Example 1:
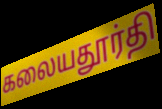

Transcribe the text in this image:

கலையதூர்தி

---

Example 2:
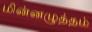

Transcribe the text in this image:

மின்னழுத்தம்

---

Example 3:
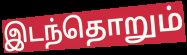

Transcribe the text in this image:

இடந்தொறும்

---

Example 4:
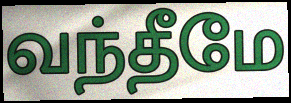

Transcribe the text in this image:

வந்தீமே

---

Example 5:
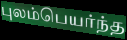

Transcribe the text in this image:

புலம்பெயர்ந்த